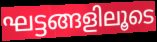
ഘട്ടങ്ങളിലൂടെ